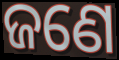
ଜଣେ